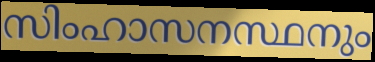
സിംഹാസനസ്ഥനും